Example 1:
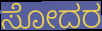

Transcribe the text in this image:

ಸೋದರ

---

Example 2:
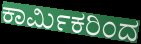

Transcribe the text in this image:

ಕಾರ್ಮಿಕರಿಂದ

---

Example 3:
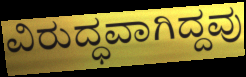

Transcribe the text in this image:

ವಿರುದ್ಧವಾಗಿದ್ದವು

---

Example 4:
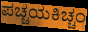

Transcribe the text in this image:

ಪಚ್ಚಯಕಿಚ್ಚಂ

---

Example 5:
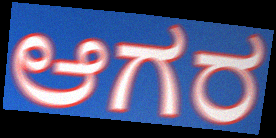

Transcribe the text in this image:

ಆಗರ